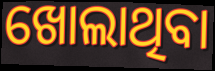
ଖୋଲାଥିବା